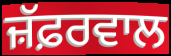
ਜ਼ੱਫ਼ਰਵਾਲ